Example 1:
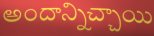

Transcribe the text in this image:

అందాన్నిచ్చాయి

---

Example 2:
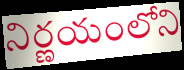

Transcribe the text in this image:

నిర్ణయంలోని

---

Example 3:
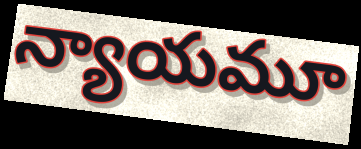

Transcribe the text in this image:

న్యాయమూ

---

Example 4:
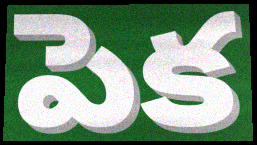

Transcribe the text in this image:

పెక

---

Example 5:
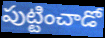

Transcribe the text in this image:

పుట్టించాడో